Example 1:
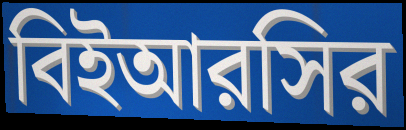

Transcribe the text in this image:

বিইআরসির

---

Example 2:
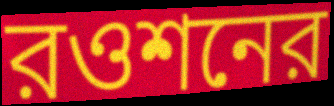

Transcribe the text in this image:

রওশনের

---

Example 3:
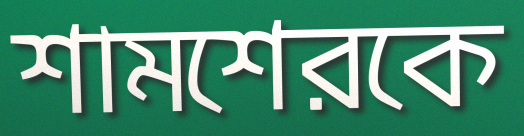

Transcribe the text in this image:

শামশেরকে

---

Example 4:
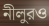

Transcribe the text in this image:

নীলুরও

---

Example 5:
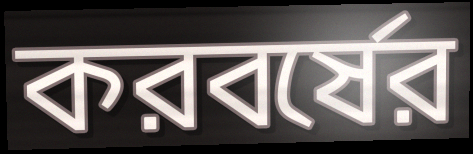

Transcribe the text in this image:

করবর্ষের